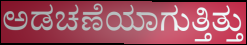
ಅಡಚಣೆಯಾಗುತ್ತಿತ್ತು